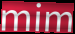
mim